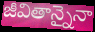
జీవితాన్నైనా